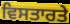
ਵਿਸਤਾਰਤੇ